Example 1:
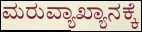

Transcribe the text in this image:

ಮರುವ್ಯಾಖ್ಯಾನಕ್ಕೆ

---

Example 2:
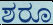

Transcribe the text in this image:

ಶರೂ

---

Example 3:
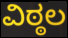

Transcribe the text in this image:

ವಿಠ್ಠಲ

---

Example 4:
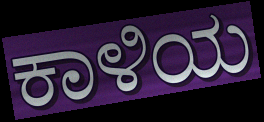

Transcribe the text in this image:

ಕಾಳಿಯ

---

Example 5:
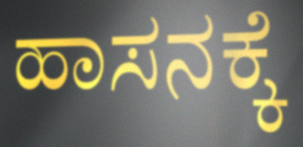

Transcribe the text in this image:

ಹಾಸನಕ್ಕೆ